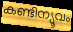
കണ്ടിന്യൂവം